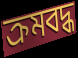
ক্ৰমবদ্ধ